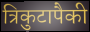
त्रिकुटापैकी